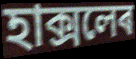
হাক্সলেৰ